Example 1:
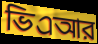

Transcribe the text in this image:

ভিএআর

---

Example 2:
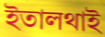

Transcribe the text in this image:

ইতালথাই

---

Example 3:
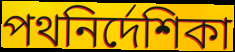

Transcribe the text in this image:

পথনির্দেশিকা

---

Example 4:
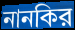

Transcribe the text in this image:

নানকির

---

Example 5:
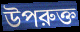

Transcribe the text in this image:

উপরুক্ত